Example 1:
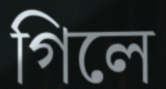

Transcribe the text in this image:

গিলে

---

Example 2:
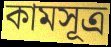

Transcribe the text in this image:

কামসূত্ৰ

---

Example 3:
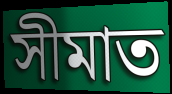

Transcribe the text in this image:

সীমাত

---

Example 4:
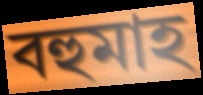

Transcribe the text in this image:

বহুমাহ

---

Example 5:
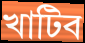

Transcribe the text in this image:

খাটিব